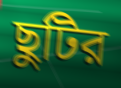
ছুটির